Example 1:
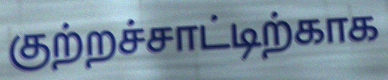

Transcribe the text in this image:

குற்றச்சாட்டிற்காக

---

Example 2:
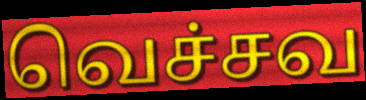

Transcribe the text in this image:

வெச்சவ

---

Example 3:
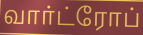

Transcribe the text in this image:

வார்ட்ரோப்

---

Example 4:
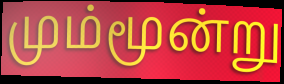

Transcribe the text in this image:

மும்மூன்று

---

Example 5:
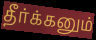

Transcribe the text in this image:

தீர்க்கனும்